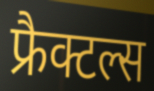
फ्रैक्टल्स